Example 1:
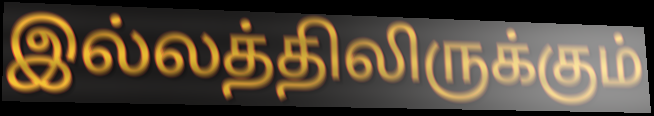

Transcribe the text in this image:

இல்லத்திலிருக்கும்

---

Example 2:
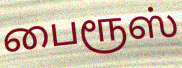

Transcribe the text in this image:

பைரூஸ்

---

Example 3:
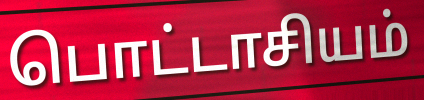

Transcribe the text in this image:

பொட்டாசியம்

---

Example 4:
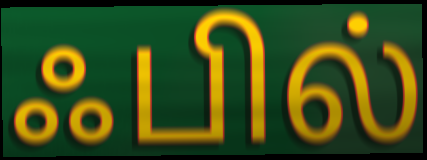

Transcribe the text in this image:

ஃபில்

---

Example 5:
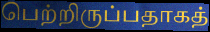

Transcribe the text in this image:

பெற்றிருப்பதாகத்